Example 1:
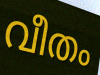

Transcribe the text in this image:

വീതം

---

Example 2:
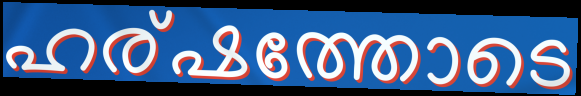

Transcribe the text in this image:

ഹര്ഷത്തോടെ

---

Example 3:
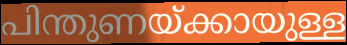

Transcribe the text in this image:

പിന്തുണയ്ക്കായുള്ള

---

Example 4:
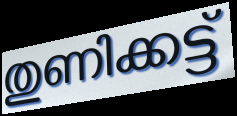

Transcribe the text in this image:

തുണിക്കട്ട്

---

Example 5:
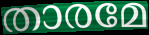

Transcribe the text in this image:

താരമേ